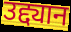
उद्द्यान